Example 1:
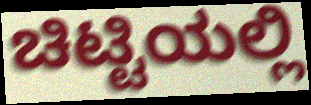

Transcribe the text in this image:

ಚಿಟ್ಟಿಯಲ್ಲಿ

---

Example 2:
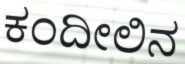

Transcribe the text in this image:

ಕಂದೀಲಿನ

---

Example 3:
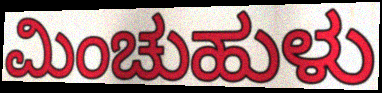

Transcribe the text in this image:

ಮಿಂಚುಹುಳು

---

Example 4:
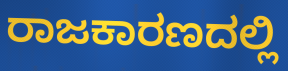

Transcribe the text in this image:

ರಾಜಕಾರಣದಲ್ಲಿ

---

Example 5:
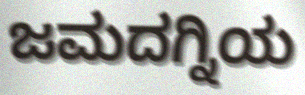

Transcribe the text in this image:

ಜಮದಗ್ನಿಯ